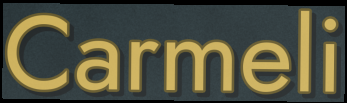
Carmeli